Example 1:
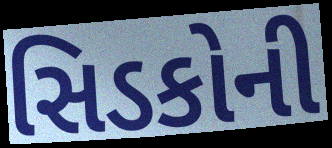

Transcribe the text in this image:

સિડકોની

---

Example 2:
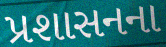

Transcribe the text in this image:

પ્રશાસનના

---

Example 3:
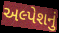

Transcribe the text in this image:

અલ્પેશનું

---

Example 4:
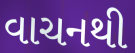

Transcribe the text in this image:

વાચનથી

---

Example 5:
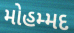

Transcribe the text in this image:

મોહમ્મદ